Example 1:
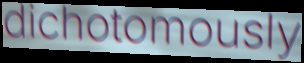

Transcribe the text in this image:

dichotomously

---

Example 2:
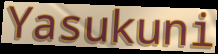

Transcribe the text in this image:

Yasukuni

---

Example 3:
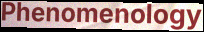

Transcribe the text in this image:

Phenomenology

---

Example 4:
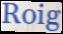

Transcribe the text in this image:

Roig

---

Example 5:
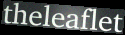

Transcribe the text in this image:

theleaflet